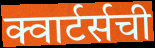
क्वार्टर्सची